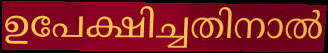
ഉപേക്ഷിച്ചതിനാൽ